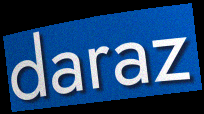
daraz